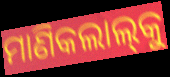
ମାଣିକଲାଲ୍‍କୁ